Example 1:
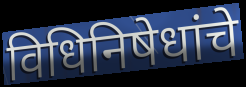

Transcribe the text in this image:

विधिनिषेधांचे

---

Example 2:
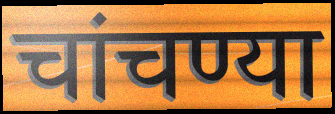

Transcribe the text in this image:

चांचण्या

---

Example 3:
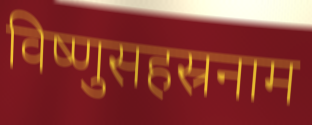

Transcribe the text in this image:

विष्णुसहस्रनाम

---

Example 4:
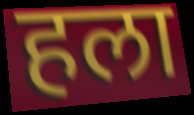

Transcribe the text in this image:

हला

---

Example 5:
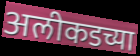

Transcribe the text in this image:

अलीकडच्या